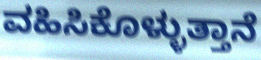
ವಹಿಸಿಕೊಳ್ಳುತ್ತಾನೆ